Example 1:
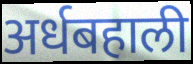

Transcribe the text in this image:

अर्धबहाली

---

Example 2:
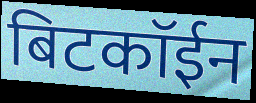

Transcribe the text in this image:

बिटकॉईन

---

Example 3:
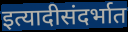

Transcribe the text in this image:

इत्यादीसंदर्भात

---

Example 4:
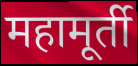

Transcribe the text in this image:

महामूर्ती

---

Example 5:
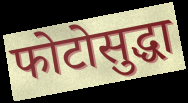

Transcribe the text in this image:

फोटोसुद्धा